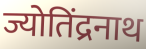
ज्योतिंद्रनाथ